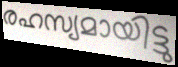
രഹസ്യമായിട്ടു